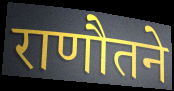
राणौतने